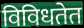
विविधतेत